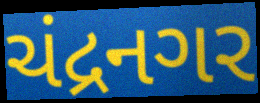
ચંદ્રનગર